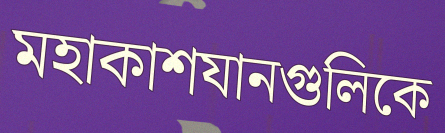
মহাকাশযানগুলিকে